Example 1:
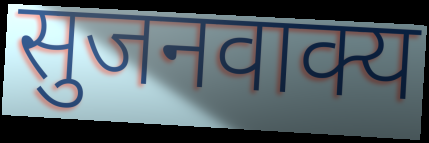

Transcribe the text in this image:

सुजनवाक्य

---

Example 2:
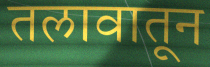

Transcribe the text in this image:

तलावातून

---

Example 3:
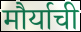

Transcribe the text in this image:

मौर्याची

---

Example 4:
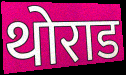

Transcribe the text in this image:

थोराड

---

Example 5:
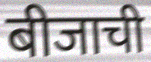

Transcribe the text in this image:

बीजाची